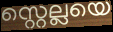
സ്റ്റെല്ലയെ